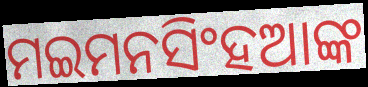
ମଇମନସିଂହଆଙ୍କ